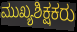
ಮುಖ್ಯಶಿಕ್ಷಕರು